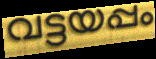
വട്ടയപ്പം